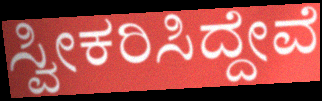
ಸ್ವೀಕರಿಸಿದ್ದೇವೆ